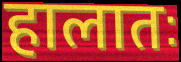
हालातः